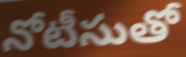
నోటీసుతో